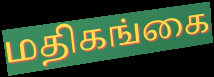
மதிகங்கை